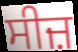
ਸੀਜ਼